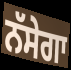
ਨੱਸੇਗਾ